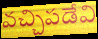
వచ్చిపడేవి